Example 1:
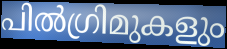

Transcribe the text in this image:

പിൽഗ്രിമുകളും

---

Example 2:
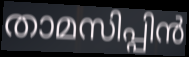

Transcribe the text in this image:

താമസിപ്പിൻ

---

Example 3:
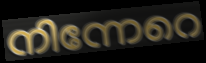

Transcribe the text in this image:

നിന്നേറെ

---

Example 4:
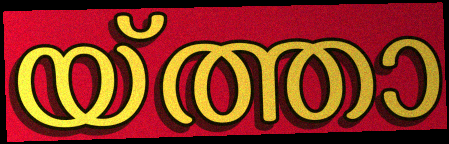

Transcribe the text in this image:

യ്ത്താ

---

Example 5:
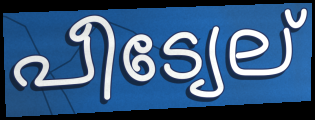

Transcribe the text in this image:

പീട്യേല്